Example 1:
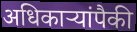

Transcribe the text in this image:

अधिकार्‍यांपैकी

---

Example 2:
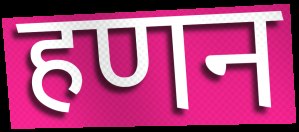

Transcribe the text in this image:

हणन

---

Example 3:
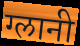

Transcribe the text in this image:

ग्लानी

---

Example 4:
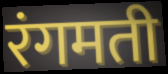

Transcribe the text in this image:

रंगमती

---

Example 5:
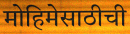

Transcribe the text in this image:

मोहिमेसाठीची